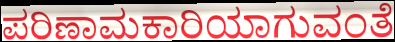
ಪರಿಣಾಮಕಾರಿಯಾಗುವಂತೆ